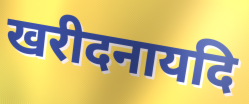
खरीदनायदि